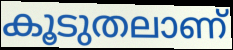
കൂടുതലാണ്